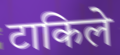
टाकिले